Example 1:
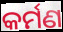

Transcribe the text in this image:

କର୍ମଣ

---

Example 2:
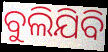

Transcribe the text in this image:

ବୁଲିଯିବି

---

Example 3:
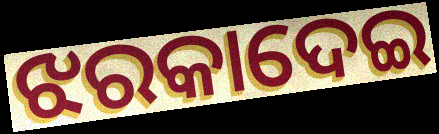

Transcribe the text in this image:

ଝରକାଦେଇ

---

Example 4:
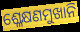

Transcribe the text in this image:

ଶ୍ଳେକ୍ଷଣମୁଖାନି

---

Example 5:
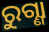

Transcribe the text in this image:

ରୁଗ୍ଣା